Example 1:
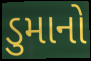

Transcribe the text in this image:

ડુમાનો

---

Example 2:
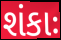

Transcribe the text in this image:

શંકાઃ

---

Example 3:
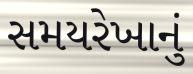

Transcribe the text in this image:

સમયરેખાનું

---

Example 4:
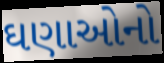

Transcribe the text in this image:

ઘણાઓનો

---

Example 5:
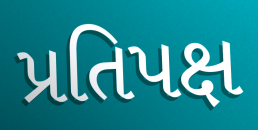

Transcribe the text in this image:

પ્રતિપક્ષ